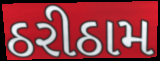
ઠરીઠામ